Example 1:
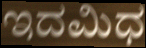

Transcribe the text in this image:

ಇದಮಿಧ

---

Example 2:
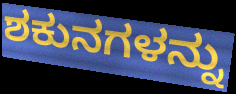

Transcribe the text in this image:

ಶಕುನಗಳನ್ನು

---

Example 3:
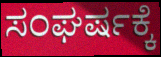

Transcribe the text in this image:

ಸಂಘರ್ಷಕ್ಕೆ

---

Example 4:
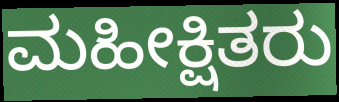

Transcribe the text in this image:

ಮಹೀಕ್ಷಿತರು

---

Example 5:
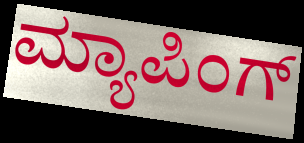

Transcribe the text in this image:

ಮ್ಯಾಪಿಂಗ್